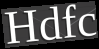
Hdfc